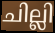
ചില്ലി